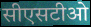
सीएसटीओ